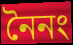
নৈনং